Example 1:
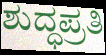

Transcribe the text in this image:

ಶುದ್ಧಪ್ರತಿ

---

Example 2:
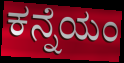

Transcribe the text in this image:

ಕನ್ನೆಯಂ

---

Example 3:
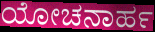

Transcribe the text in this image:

ಯೋಚನಾರ್ಹ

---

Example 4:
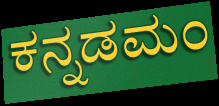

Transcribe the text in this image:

ಕನ್ನಡಮಂ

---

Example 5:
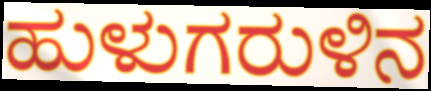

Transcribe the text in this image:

ಹುಳುಗರುಳಿನ